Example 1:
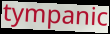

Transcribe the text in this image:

tympanic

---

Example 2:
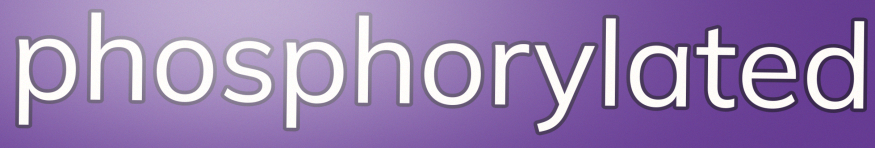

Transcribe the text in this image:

phosphorylated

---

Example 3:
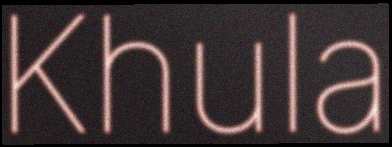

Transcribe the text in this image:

Khula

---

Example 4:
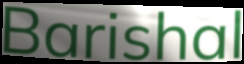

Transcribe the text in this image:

Barishal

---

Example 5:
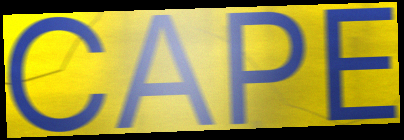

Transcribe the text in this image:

CAPE